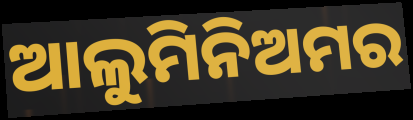
ଆଲୁମିନିଅମର